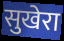
सुखेरा